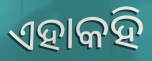
ଏହାକହି